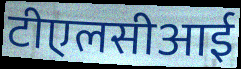
टीएलसीआई